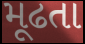
મૂઢતા